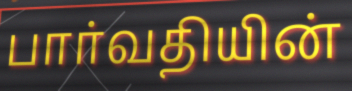
பார்வதியின்